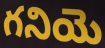
గనియె